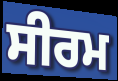
ਸੀਰਮ